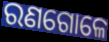
ରଣଗୋଳେ